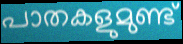
പാതകളുമുണ്ട്